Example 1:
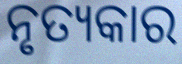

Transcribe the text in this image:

ନୃତ୍ୟକାର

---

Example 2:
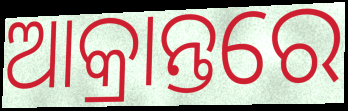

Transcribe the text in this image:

ଆକ୍ରାନ୍ତରେ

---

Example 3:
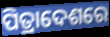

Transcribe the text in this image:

ପିତ୍ରାଦେଶରେ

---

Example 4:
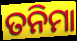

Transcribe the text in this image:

ତନିମା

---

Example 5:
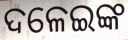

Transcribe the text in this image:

ଦଳେଇଙ୍କ